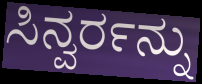
ಸಿನ್ವರ್ರನ್ನು